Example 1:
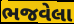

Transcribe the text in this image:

ભજવેલા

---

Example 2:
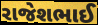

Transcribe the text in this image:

રાજેશભાઈ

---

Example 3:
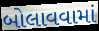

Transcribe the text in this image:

બોલાવવામાં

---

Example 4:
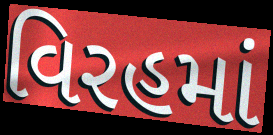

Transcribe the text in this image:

વિરહમાં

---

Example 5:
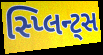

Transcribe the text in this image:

સ્પ્લિન્ટ્સ